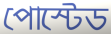
পোস্টেড